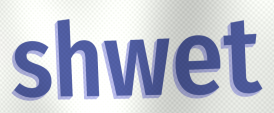
shwet